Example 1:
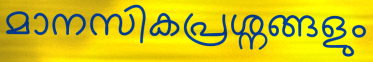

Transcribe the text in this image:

മാനസികപ്രശ്നങ്ങളും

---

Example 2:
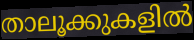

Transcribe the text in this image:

താലൂക്കുകളിൽ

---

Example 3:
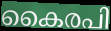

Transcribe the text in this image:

കൈരപി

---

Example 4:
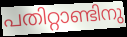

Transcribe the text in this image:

പതിറ്റാണ്ടിനു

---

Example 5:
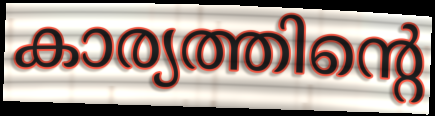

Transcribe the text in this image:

കാര്യത്തിന്റെ